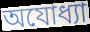
অযোধ্যা